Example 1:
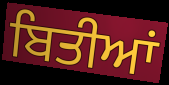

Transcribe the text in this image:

ਬਿਤੀਆਂ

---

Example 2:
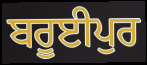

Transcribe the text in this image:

ਬਰੂਈਪੁਰ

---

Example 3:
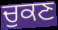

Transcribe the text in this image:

ਚੁਕਣ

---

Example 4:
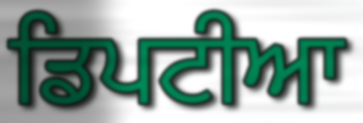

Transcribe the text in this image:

ਡਿਪਟੀਆ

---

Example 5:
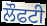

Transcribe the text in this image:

ਲੌਫਟੀ